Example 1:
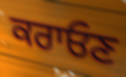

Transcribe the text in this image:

ਕਰਾਓਣ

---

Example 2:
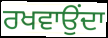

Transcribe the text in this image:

ਰਖਵਾਉਂਦਾ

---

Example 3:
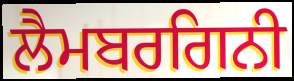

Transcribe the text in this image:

ਲੈਮਬਰਗਿਨੀ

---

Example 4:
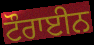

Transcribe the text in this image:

ਟੌਰਾਈਨ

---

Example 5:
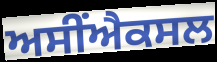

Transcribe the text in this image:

ਅਸੀਂਐਕਸਲ